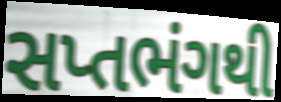
સપ્તભંગથી